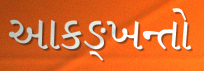
આકઙ્ખન્તો